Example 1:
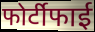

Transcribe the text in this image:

फोर्टीफाई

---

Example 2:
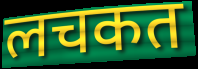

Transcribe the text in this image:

लचकत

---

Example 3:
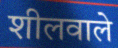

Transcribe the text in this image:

शीलवाले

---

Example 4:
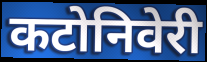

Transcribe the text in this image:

कटोनिवेरी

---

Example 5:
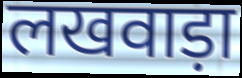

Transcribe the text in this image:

लखवाड़ा